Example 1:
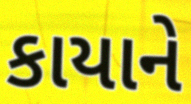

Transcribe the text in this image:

કાયાને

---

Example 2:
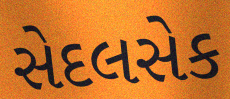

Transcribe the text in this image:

સેદલસેક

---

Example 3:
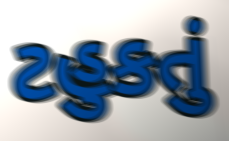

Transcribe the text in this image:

ટહુકતું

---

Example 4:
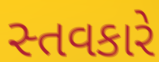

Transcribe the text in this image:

સ્તવકારે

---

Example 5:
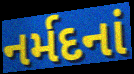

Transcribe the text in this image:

નર્મદનાં